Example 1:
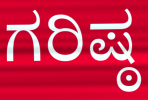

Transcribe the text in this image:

ಗರಿಷ್ಠ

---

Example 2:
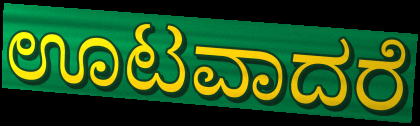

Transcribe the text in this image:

ಊಟವಾದರೆ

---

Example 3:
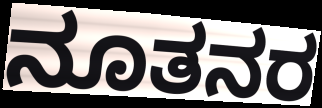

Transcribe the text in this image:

ನೂತನರ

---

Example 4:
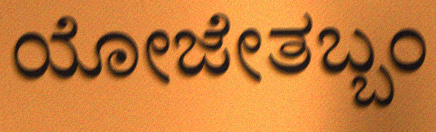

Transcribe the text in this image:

ಯೋಜೇತಬ್ಬಂ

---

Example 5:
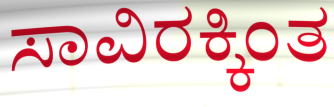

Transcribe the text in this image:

ಸಾವಿರಕ್ಕಿಂತ